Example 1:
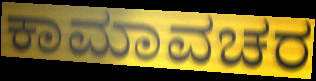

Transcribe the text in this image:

ಕಾಮಾವಚರ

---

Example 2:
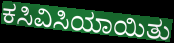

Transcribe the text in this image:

ಕಸಿವಿಸಿಯಾಯಿತು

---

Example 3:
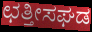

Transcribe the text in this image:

ಛತ್ತೀಸಘಡ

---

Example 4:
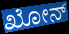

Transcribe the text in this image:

ಖೋನ್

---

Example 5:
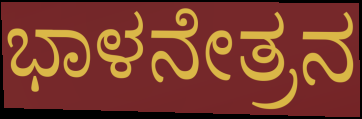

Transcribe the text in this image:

ಭಾಳನೇತ್ರನ